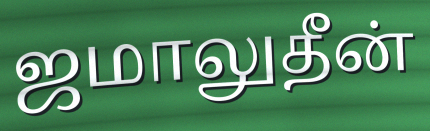
ஜமாலுதீன்